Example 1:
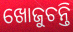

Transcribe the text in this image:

ଖୋଜୁଚନ୍ତି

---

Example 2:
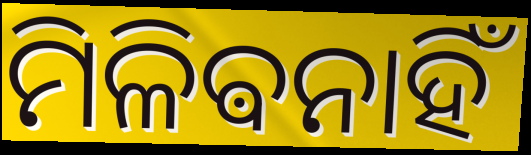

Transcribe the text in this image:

ମିଳିଵନାହିଁ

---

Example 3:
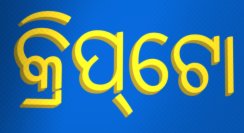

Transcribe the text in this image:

କ୍ରିପ୍‌ଟୋ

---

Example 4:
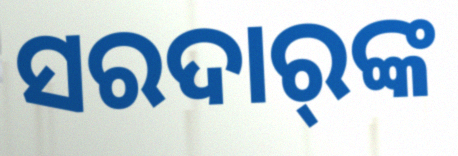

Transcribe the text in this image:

ସରଦାର୍‍ଙ୍କ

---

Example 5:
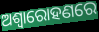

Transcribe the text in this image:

ଅଶ୍ଵାରୋହଣରେ